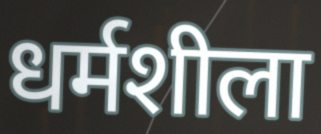
धर्मशीला